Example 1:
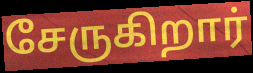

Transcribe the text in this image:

சேருகிறார்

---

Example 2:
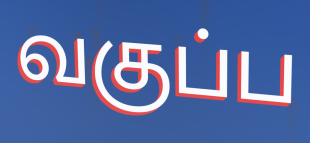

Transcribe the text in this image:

வகுப்ப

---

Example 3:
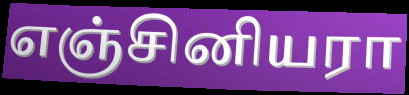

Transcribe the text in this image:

எஞ்சினியரா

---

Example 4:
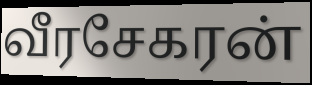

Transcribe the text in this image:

வீரசேகரன்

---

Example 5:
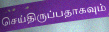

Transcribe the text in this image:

செய்திருப்பதாகவும்